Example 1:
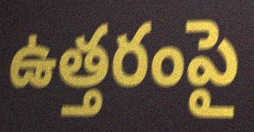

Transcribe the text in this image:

ఉత్తరంపై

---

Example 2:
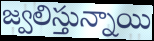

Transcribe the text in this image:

జ్వలిస్తున్నాయి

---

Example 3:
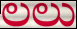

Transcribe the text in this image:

లలు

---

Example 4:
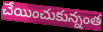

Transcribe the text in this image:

చేయించుకున్నంత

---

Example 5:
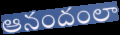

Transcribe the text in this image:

ఆనందంలా